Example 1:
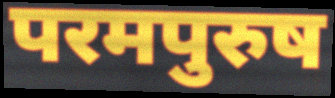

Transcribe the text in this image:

परमपुरुष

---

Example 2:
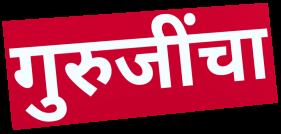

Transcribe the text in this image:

गुरुजींचा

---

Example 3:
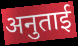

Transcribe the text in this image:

अनुताई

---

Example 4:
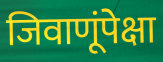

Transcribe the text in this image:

जिवाणूंपेक्षा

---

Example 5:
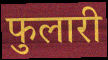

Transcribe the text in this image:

फुलारी